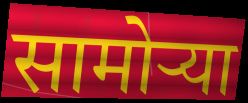
सामोऱ्या